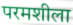
परमशीला